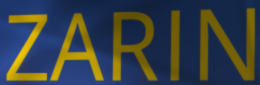
ZARIN